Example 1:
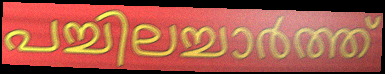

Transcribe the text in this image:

പച്ചിലച്ചാർത്ത്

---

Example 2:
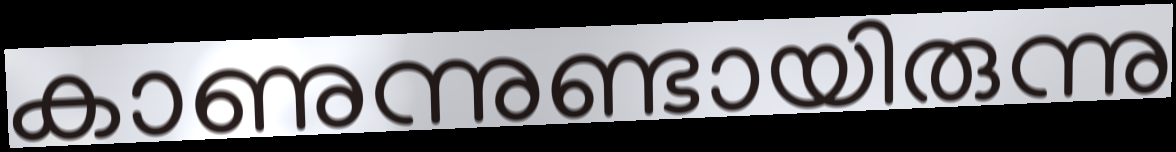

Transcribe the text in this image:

കാണുന്നുണ്ടായിരുന്നു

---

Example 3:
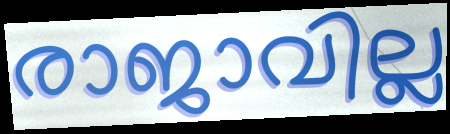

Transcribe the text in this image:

രാജാവില്ല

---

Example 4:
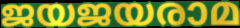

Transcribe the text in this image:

ജയജയരാമ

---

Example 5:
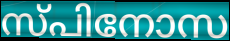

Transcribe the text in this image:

സ്പിനോസ